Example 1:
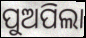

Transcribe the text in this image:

ପୁଅପିଲା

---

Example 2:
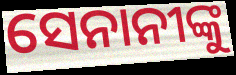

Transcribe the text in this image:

ସେନାନୀଙ୍କୁ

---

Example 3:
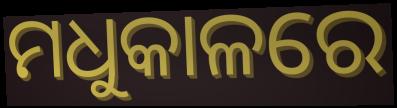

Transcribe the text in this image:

ମଧୁକାଳରେ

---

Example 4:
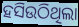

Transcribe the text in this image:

ହସିଉଠିଥିଲା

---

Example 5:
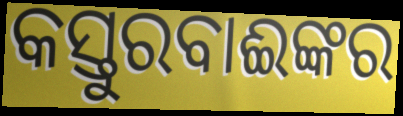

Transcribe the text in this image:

କସ୍ତୁରବାଈଙ୍କର